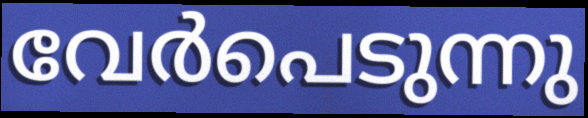
വേർപെടുന്നു